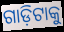
ଗାଡ଼ିଟାକୁ